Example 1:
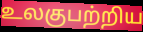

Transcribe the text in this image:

உலகுபற்றிய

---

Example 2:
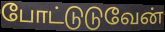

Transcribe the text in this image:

போட்டுடுவேன்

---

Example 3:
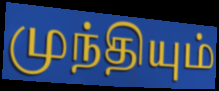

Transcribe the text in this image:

முந்தியும்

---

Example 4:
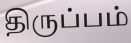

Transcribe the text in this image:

திருப்பம்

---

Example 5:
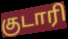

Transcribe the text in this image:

குடாரி